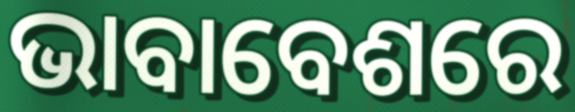
ଭାବାବେଶରେ